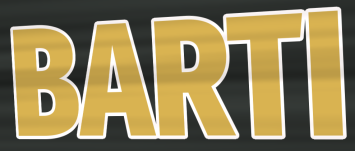
BARTI